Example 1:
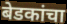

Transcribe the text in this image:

बेडकांचा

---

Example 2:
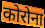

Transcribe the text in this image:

कोरोना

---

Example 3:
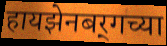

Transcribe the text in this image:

हायझेनबर्गच्या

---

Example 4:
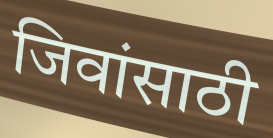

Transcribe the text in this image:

जिवांसाठी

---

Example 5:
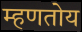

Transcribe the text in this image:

म्हणतोय